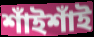
শাঁইশাঁই